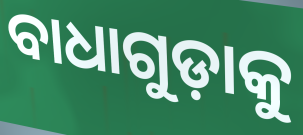
ବାଧାଗୁଡ଼ାକୁ